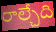
రాల్చేది